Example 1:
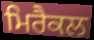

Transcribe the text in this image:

ਮਿਰੈਕਲ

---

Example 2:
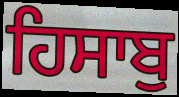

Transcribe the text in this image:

ਹਿਸਾਬੁ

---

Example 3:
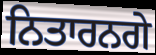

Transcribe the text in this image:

ਨਿਤਾਰਨਗੇ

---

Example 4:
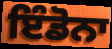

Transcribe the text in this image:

ਇੰਡੋਨਾ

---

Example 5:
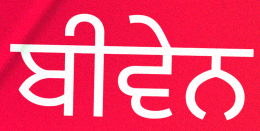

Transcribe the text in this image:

ਬੀਵੇਨ